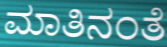
ಮಾತಿನಂತೆ